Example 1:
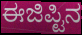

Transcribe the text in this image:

ಈಜಿಪ್ಟಿನ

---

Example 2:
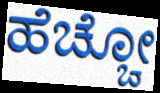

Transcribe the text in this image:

ಹೆಚ್ಚೋ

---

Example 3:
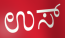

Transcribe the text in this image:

ಉಸ್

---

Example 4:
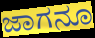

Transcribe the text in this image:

ಜಾಗನೂ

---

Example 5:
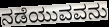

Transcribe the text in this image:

ನಡೆಯುವವನು